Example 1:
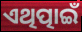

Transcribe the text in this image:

ଏଥିତ୍ପାଇଁ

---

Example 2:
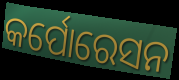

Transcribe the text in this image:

କର୍ପୋରେସନ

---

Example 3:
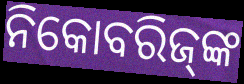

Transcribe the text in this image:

ନିକୋବରିଜ୍‍ଙ୍କ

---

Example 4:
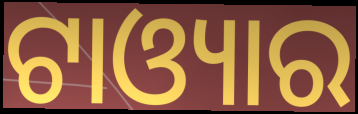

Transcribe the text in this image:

ଟାଓ୍ୟାର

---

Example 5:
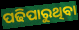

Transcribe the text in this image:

ପଢିପାରୁଥିବା